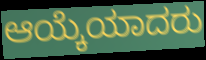
ಆಯ್ಕೆಯಾದರು